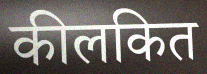
कीलकित